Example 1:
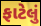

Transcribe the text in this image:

ફાટેલું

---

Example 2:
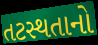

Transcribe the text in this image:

તટસ્થતાનો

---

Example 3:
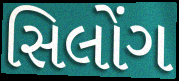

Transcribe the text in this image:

સિલોંગ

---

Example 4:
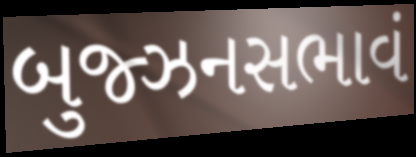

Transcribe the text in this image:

બુજ્ઝનસભાવં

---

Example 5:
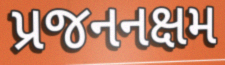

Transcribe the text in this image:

પ્રજનનક્ષમ